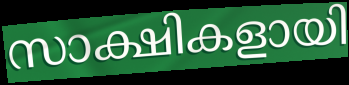
സാക്ഷികളായി